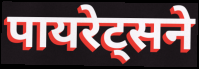
पायरेट्सने